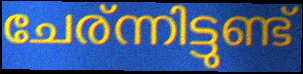
ചേര്ന്നിട്ടുണ്ട്